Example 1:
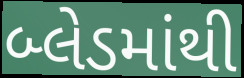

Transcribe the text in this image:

બ્લેડમાંથી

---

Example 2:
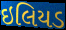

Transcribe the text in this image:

ઇલિયડ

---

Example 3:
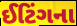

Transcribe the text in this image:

ઈટિંગના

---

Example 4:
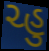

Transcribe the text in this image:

ચ્હુ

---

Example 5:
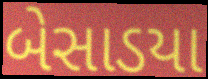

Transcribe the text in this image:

બેસાડયા